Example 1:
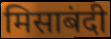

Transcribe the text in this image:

मिसाबंदी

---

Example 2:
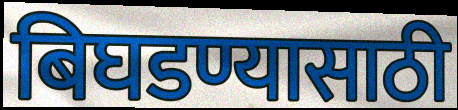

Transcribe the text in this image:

बिघडण्यासाठी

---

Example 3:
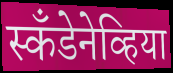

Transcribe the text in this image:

स्कॅंडेनेव्हिया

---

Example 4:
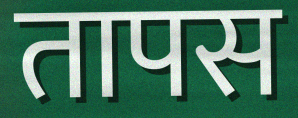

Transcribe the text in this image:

तापस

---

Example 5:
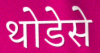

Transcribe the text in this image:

थोडेसे